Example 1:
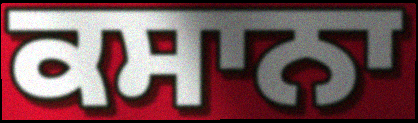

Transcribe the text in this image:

ਕਸਾਨਾ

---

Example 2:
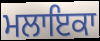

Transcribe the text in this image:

ਮਲਾਇਕਾ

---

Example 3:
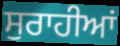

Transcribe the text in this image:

ਸੁਰਾਹੀਆਂ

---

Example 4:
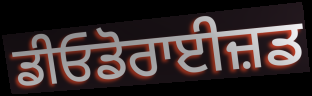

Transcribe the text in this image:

ਡੀਓਡੋਰਾਈਜ਼ਡ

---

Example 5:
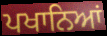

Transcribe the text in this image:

ਪਖਾਨਿਆਂ